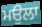
ਮਉਲਾ